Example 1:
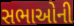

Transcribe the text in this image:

સભાઓની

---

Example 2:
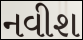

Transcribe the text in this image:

નવીશ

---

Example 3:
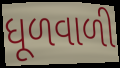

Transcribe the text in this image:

ધૂળવાળી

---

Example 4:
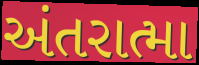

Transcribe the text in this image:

અંતરાત્મા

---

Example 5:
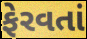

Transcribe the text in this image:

ફેરવતાં